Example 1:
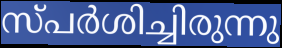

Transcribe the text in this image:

സ്പർശിച്ചിരുന്നു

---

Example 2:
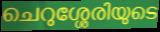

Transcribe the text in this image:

ചെറുശ്ശേരിയുടെ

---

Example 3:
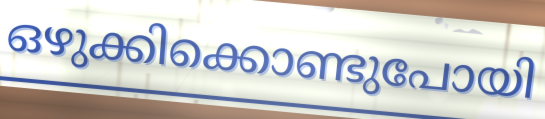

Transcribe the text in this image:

ഒഴുക്കിക്കൊണ്ടുപോയി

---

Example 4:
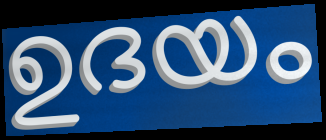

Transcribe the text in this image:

ഉദയം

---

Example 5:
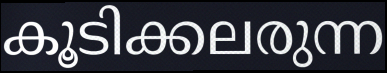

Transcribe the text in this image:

കൂടിക്കലരുന്ന